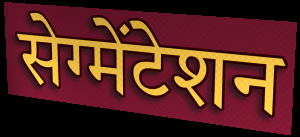
सेग्मेंटेशन